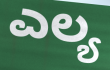
ಎಲ್ಯ